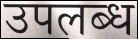
उपलब्ध